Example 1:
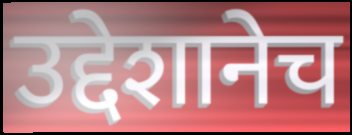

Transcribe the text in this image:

उद्देशानेच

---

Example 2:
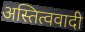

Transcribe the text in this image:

अस्तित्ववादी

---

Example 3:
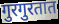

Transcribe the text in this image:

गुरगुरतात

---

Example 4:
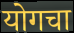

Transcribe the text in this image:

योगचा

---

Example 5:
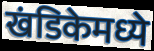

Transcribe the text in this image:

खंडिकेमध्ये